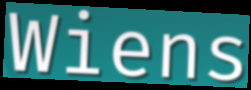
Wiens